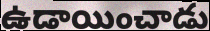
ఉడాయించాడు